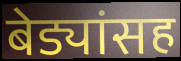
बेड्यांसह